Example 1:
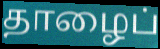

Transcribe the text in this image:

தாழைப்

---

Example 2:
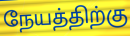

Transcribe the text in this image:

நேயத்திற்கு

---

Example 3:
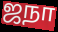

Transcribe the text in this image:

ஜநா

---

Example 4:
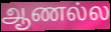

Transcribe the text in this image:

ஆணல்ல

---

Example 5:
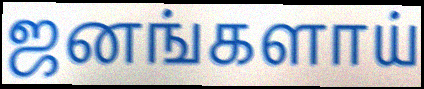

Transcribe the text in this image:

ஜனங்களாய்